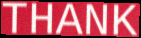
THANK